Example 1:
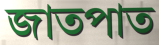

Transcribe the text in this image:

জাতপাত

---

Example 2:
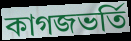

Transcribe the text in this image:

কাগজভর্তি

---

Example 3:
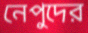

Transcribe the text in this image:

নেপুদের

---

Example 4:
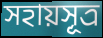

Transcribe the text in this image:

সহায়সূত্র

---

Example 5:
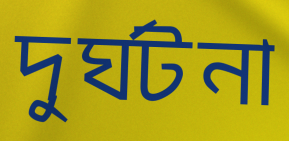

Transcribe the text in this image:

দুর্ঘটনা